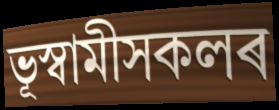
ভূস্বামীসকলৰ